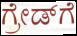
ಗ್ರೇಡ್‌ಗೆ